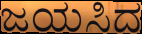
ಜಯಸಿದ